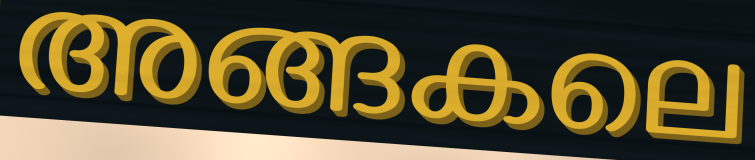
അങ്ങകലെ